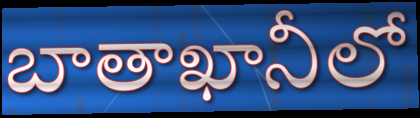
బాతాఖానీలో